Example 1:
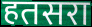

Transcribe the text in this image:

हतसरा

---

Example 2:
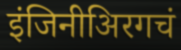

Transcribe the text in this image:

इंजिनीअिरगचं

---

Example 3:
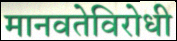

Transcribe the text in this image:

मानवतेविरोधी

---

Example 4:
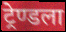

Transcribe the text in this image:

ट्रेण्डला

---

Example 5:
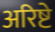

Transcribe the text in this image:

अरिष्टे